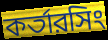
কর্তারসিং